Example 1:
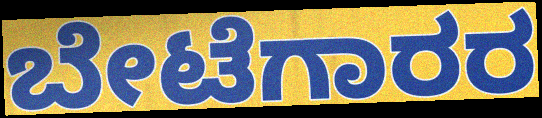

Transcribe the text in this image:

ಬೇಟೆಗಾರರ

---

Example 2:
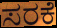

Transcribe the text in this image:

ಸರಕೆ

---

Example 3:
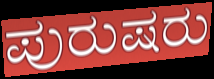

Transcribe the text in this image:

ಪುರುಷರು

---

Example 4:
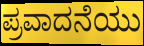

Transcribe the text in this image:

ಪ್ರವಾದನೆಯು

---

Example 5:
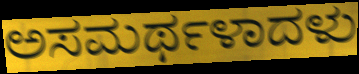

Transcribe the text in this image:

ಅಸಮರ್ಥಳಾದಳು